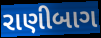
રાણીબાગ